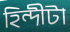
হিন্দীটা